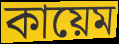
কায়েম